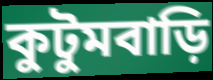
কুটুমবাড়ি